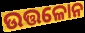
ଉତ୍ତଳୋନ